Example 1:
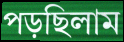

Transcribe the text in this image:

পড়ছিলাম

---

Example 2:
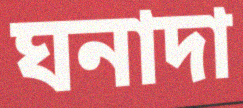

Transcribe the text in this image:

ঘনাদা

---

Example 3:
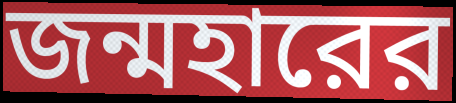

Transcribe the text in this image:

জন্মহারের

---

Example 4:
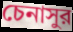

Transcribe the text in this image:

চেনাসুর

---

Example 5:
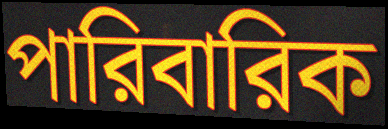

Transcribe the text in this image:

পারিবারিক